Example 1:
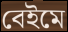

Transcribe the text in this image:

বেইমে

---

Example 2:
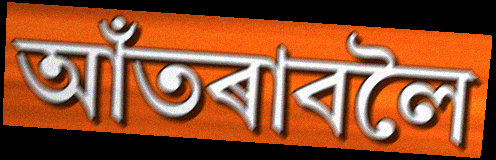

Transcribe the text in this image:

আঁতৰাবলৈ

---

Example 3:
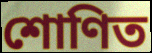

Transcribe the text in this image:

শোণিত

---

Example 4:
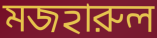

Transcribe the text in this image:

মজহাৰুল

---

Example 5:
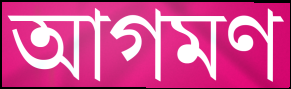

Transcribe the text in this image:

আগমণ